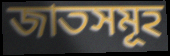
জাতসমূহ